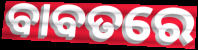
ବାବତରେ